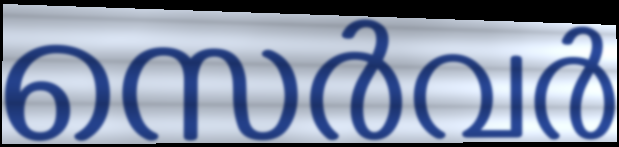
സെർവർ